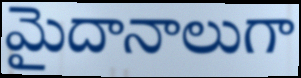
మైదానాలుగా